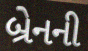
બ્રેનની